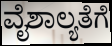
ವೈಶಾಲ್ಯತೆಗೆ